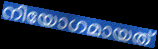
നിയോഗമായത്